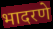
भादरणे